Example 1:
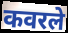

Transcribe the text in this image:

कवरले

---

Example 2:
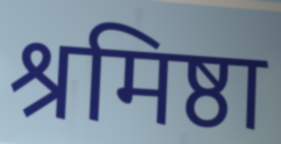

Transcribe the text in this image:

श्रमिष्ठा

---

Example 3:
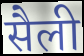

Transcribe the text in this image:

सैली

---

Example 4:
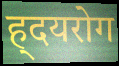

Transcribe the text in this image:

ह्दयरोग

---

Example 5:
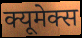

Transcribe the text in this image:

क्यूमेक्स